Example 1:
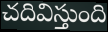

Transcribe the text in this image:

చదివిస్తుంది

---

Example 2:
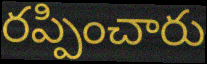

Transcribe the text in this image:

రప్పించారు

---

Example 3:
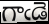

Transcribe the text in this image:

గాఁడె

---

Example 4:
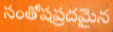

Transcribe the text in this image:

సంతోషప్రదమైన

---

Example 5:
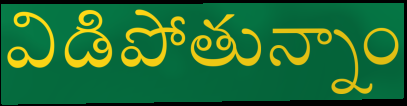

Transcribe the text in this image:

విడిపోతున్నాం